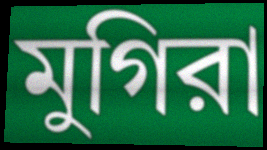
মুগিরা